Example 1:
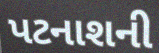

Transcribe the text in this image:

પટનાશની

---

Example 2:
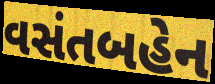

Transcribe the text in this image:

વસંતબહેન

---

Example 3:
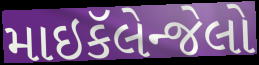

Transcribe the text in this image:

માઇકૅલેન્જેલો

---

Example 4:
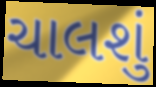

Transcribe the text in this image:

ચાલશું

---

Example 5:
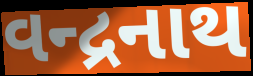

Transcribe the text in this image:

વન્દ્રનાથ